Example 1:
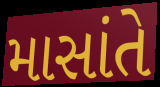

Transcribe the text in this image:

માસાંતે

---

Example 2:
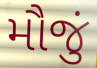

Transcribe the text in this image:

મૌજું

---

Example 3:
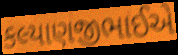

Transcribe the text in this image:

કલ્યાણજીભાઈએ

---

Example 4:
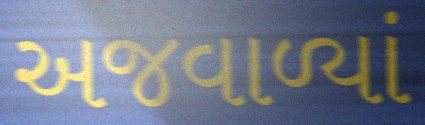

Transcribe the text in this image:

અજવાળ્યાં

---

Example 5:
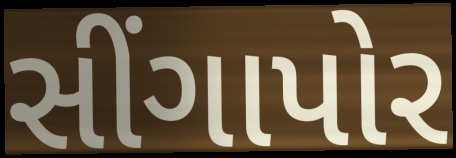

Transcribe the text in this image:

સીંગાપોર